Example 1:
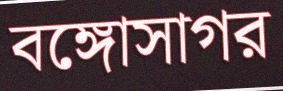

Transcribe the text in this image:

বঙ্গোসাগর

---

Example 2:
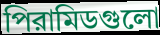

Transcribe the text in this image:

পিরামিডগুলো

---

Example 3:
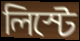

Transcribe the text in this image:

লিস্টে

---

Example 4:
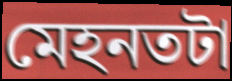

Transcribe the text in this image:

মেহনতটা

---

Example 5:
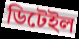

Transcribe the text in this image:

ডিটেইল